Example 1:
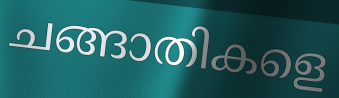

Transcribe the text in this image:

ചങ്ങാതികളെ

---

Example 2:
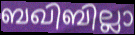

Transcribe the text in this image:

ബഖിബില്ലാ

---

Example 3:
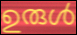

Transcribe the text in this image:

ഉരുൾ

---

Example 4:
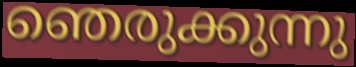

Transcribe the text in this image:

ഞെരുക്കുന്നു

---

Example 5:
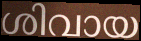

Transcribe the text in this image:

ശിവായ